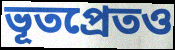
ভূতপ্রেতও